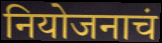
नियोजनाचं